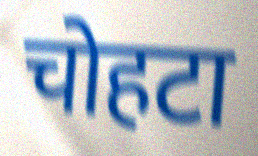
चोहटा